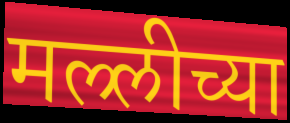
मल्लीच्या